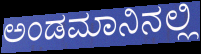
ಅಂಡಮಾನಿನಲ್ಲಿ